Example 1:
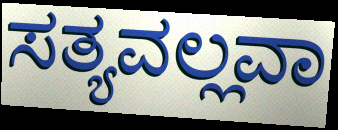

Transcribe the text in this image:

ಸತ್ಯವಲ್ಲವಾ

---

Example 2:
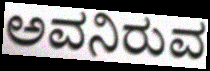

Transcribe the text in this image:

ಅವನಿರುವ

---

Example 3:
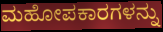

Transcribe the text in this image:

ಮಹೋಪಕಾರಗಳನ್ನು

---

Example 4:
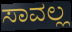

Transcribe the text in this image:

ಸಾವಲ್ಲ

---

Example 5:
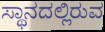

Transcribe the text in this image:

ಸ್ಥಾನದಲ್ಲಿರುವ